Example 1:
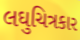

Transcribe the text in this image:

લઘુચિત્રકાર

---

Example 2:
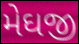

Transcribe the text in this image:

મેઘજી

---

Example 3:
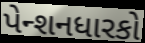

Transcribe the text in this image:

પેન્શનધારકો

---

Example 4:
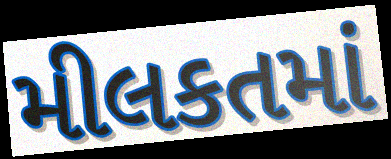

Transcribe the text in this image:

મીલકતમાં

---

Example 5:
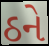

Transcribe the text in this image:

ઠને